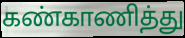
கண்காணித்து